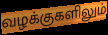
வழக்குகளிலும்